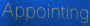
Appointing